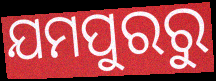
ଯମପୁରରୁ